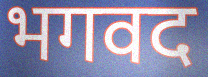
भगवद